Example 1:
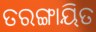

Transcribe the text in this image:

ତରଙ୍ଗାୟିତ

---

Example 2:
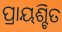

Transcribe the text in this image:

ପ୍ରାୟଶ୍ଚିତ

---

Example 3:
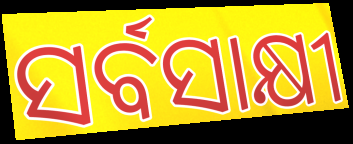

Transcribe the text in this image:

ସର୍ବସାକ୍ଷୀ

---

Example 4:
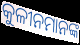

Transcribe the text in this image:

କୁଳୀନମାନଙ୍କ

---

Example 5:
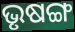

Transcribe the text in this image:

ଭୃଷଙ୍ଗ